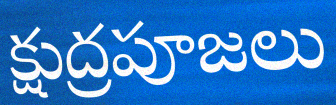
క్షుద్రపూజలు